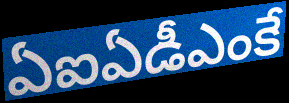
ఏఐఏడీఎంకే